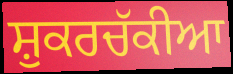
ਸ਼ੁਕਰਚੱਕੀਆ